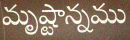
మృష్టాన్నము